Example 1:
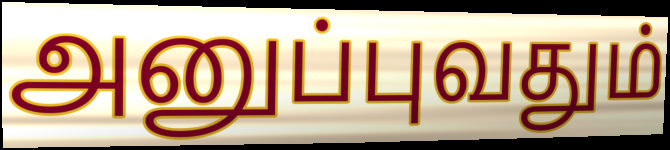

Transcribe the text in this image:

அனுப்புவதும்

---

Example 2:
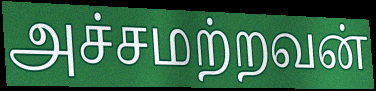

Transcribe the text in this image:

அச்சமற்றவன்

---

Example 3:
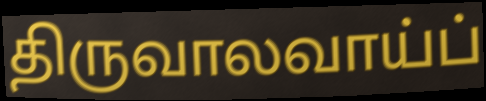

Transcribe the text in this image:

திருவாலவாய்ப்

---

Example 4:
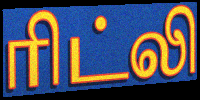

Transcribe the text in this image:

ரிட்லி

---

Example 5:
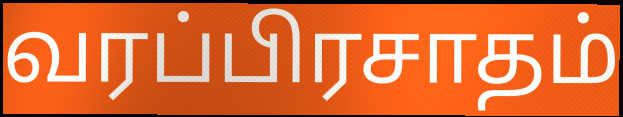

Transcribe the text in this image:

வரப்பிரசாதம்